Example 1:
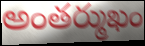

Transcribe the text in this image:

అంతర్ముఖం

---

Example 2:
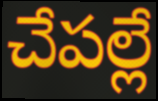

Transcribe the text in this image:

చేపల్లే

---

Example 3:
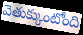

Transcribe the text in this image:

వెతుక్కుంటోంది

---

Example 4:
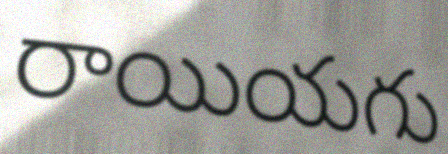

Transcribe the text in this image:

రాయియగు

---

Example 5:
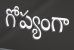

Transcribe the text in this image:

గోప్యంగా